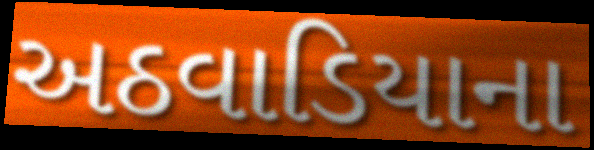
અઠવાડિયાના